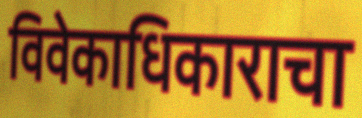
विवेकाधिकाराचा